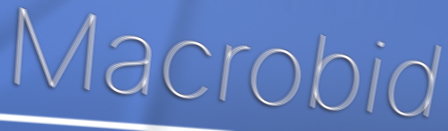
Macrobid